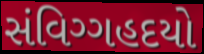
સંવિગ્ગહદયો